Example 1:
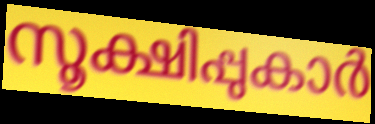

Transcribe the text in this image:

സൂക്ഷിപ്പുകാർ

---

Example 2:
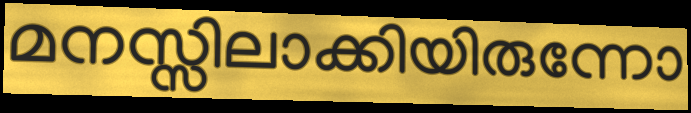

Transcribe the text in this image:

മനസ്സിലാക്കിയിരുന്നോ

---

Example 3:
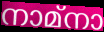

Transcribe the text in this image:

നാമ്നാ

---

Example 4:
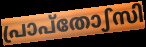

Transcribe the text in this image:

പ്രാപ്തോഽസി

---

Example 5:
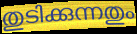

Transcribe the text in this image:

തുടിക്കുന്നതും